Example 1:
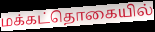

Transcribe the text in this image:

மக்கட்தொகையில்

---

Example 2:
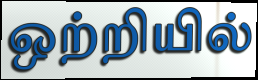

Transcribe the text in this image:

ஒற்றியில்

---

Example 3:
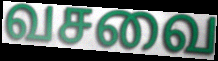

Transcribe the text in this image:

வசவை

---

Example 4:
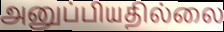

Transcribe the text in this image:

அனுப்பியதில்லை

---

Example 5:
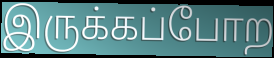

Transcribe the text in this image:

இருக்கப்போற